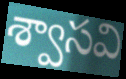
శ్వాసవి